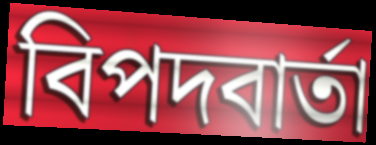
বিপদবার্তা